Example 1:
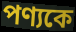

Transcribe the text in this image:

পণ্যকে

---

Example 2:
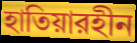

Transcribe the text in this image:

হাতিয়ারহীন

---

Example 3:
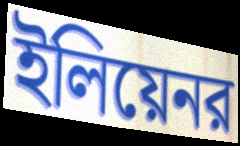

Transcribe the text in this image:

ইলিয়েনর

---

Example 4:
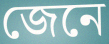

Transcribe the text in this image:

জেনে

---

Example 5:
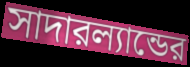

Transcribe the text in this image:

সাদারল্যান্ডের